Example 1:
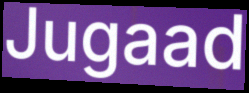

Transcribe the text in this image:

Jugaad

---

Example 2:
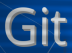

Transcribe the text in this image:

Git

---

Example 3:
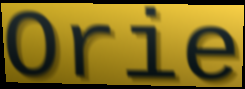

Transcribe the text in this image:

Orie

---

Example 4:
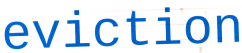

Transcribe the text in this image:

eviction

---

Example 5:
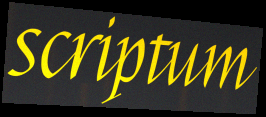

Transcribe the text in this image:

scriptum